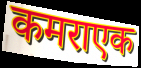
कमराएक